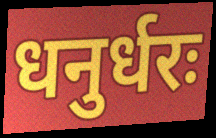
धनुर्धरः